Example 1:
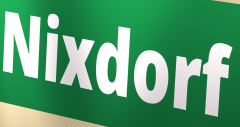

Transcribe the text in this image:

Nixdorf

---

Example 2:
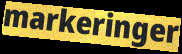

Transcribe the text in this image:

markeringer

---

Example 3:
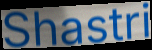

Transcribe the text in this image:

Shastri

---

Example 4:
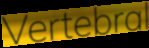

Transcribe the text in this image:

Vertebral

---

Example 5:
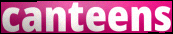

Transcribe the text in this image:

canteens